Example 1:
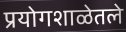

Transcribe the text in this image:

प्रयोगशाळेतले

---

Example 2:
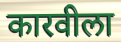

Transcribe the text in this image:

कारवीला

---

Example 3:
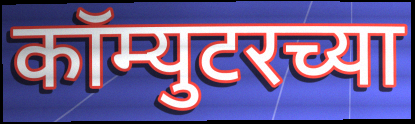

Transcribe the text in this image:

कॉम्युटरच्या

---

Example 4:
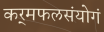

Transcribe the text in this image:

कर्मफलसंयोगं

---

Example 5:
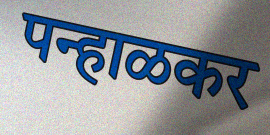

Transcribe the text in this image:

पन्हाळकर